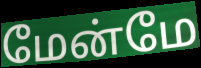
மேன்மே